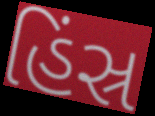
હિંસ્ર